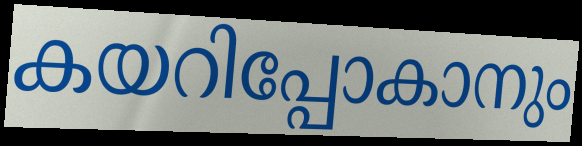
കയറിപ്പോകാനും